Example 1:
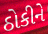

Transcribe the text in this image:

ઠોકીને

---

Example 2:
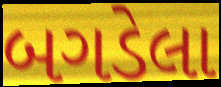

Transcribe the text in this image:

બગડેલા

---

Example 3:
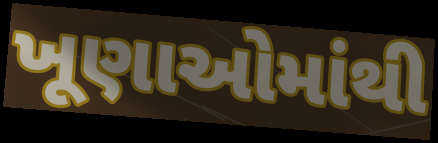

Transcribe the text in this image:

ખૂણાઓમાંથી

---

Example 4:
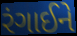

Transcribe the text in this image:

રંગાઈને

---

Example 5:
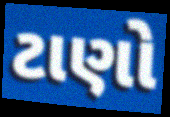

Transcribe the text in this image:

ટાણો